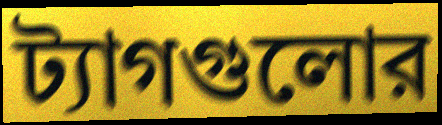
ট্যাগগুলোর